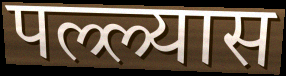
पल्ल्यास